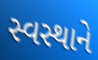
સ્વસ્થાને